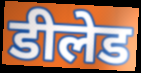
डीलेड